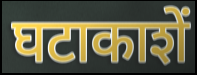
घटाकाशें